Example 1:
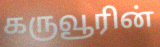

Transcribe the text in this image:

கருவூரின்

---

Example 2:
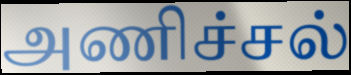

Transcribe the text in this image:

அணிச்சல்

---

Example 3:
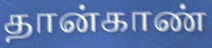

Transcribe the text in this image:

தான்காண்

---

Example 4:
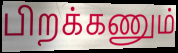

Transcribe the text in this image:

பிறக்கணும்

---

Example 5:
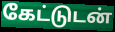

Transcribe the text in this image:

கேட்டுடன்